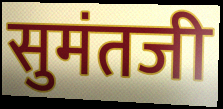
सुमंतजी